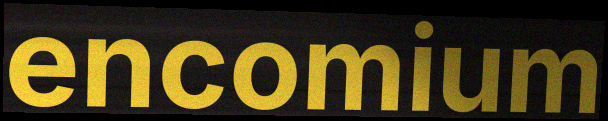
encomium